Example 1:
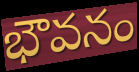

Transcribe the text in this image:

భౌవనం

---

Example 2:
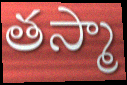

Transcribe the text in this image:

తస్మా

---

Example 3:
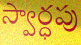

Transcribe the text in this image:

స్వార్ధపు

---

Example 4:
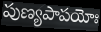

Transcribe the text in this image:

పుణ్యపాపయోః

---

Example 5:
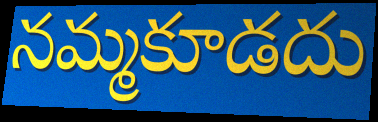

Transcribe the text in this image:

నమ్మకూడదు